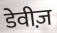
डेवीज़